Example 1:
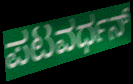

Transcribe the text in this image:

ಪಟವರ್ಧನ್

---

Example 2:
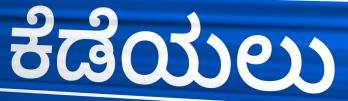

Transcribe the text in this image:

ಕೆಡೆಯಲು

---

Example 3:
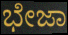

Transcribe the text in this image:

ಭೇಜಾ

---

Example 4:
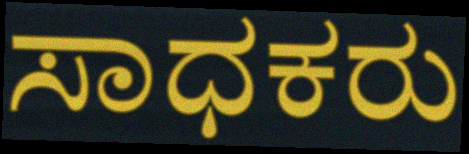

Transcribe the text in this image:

ಸಾಧಕರು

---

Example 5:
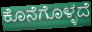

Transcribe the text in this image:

ಕೊನೆಗೊಳ್ಳದೆ